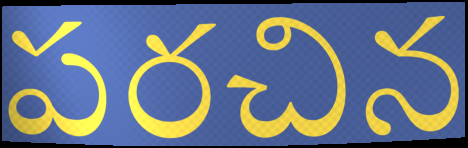
పరచిన